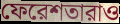
ফেরেশতারাও